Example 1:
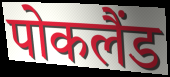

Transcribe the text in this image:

पोकलैंड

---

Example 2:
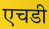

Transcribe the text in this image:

एचडी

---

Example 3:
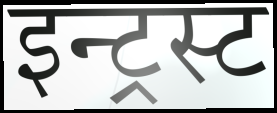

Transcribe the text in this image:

इन्ट्रस्ट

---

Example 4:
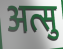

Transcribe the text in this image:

अत्सु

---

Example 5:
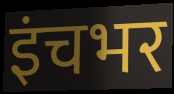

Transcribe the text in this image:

इंचभर